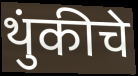
थुंकीचे